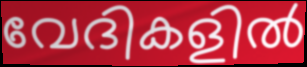
വേദികളിൽ